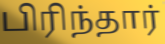
பிரிந்தார்